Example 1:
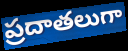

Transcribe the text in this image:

ప్రదాతలుగా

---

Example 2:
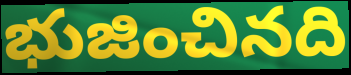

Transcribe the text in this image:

భుజించినది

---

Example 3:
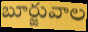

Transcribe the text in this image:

బూర్జువాల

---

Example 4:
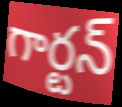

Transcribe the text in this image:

గార్టన్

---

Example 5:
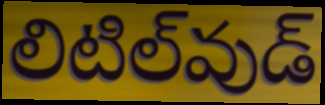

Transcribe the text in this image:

లిటిల్‌వుడ్